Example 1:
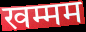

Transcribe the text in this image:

खम्मम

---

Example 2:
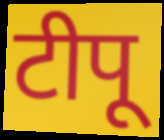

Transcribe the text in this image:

टीपू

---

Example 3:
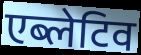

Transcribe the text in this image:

एब्लेटिव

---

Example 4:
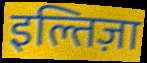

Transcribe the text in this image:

इल्तिज़ा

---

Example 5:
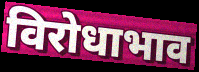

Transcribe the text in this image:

विरोधाभाव